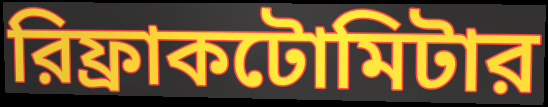
রিফ্রাকটোমিটার